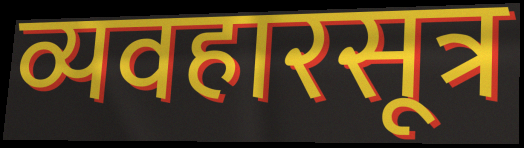
व्यवहारसूत्र